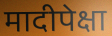
मादीपेक्षा